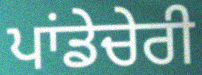
ਪਾਂਡੇਚੇਰੀ